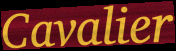
Cavalier